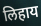
लिहाय